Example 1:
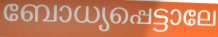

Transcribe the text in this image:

ബോധ്യപ്പെട്ടാലേ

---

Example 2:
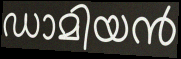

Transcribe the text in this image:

ഡാമിയൻ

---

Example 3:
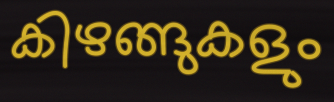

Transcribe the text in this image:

കിഴങ്ങുകളും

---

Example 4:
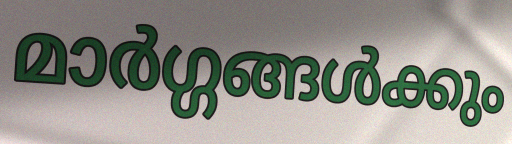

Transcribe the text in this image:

മാർഗ്ഗങ്ങൾക്കും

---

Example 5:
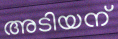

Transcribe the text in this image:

അടിയന്